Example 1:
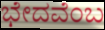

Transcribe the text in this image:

ಭೇದವೆಂಬ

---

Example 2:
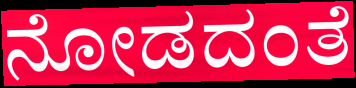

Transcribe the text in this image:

ನೋಡದಂತೆ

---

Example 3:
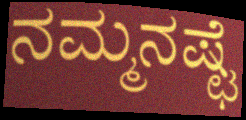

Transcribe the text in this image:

ನಮ್ಮನಷ್ಟೆ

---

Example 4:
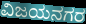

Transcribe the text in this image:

ವಿಜಯನಗರ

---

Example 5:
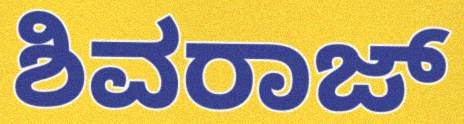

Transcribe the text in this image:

ಶಿವರಾಜ್